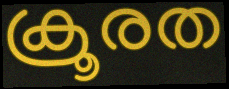
ക്രൂരത